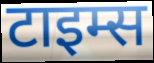
टाइम्स